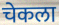
चेकला